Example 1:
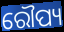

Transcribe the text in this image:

ରୌପ୍ୟ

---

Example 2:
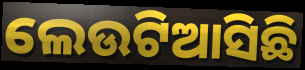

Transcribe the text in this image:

ଲେଉଟିଆସିଛି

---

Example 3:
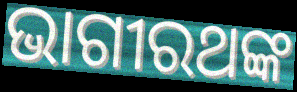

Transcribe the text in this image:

ଭାଗୀରଥଙ୍କ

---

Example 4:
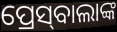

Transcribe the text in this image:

ପ୍ରେସ୍‌ବାଲାଙ୍କ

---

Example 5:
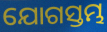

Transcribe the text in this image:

ଯୋଗସ୍ତମ୍ଭ